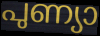
പുണ്യാ